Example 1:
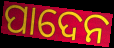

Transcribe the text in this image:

ପାଦେନ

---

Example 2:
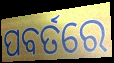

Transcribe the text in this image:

ପବର୍ତରେ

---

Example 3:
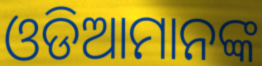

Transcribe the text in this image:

ଓଡିଆମାନଙ୍କ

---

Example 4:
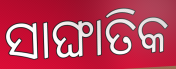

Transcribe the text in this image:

ସାଙ୍ଘାତିକ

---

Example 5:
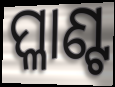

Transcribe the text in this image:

ପ୍ଳାଣ୍ଟ